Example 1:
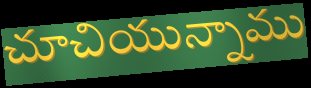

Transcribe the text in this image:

చూచియున్నాము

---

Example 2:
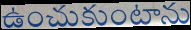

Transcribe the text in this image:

ఉంచుకుంటాను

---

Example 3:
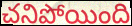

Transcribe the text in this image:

చనిపోయింది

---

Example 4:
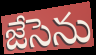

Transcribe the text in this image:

జేసెను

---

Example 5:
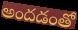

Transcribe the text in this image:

అందడంతో